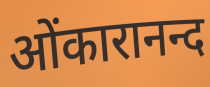
ओंकारानन्द